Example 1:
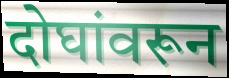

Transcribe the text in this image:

दोघांवरून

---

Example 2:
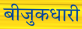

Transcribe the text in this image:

बीजुकधारी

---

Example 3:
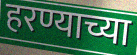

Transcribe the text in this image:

हरण्याच्या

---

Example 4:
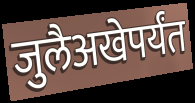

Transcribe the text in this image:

जुलैअखेपर्यंत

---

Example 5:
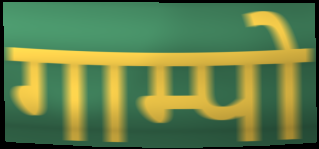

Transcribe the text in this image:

गाम्पो